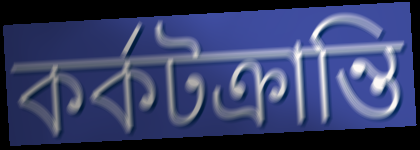
কর্কটক্রান্তি